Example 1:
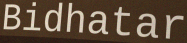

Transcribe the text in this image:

Bidhatar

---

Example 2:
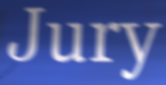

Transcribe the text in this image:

Jury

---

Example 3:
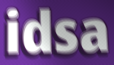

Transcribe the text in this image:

idsa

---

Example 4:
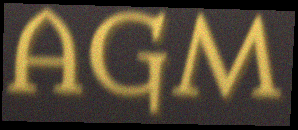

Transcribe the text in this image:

AGM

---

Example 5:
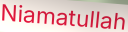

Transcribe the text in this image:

Niamatullah